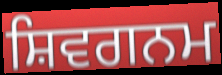
ਸ਼ਿਵਗਨਮ